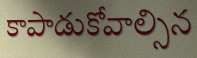
కాపాడుకోవాల్సిన